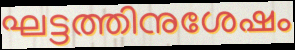
ഘട്ടത്തിനുശേഷം